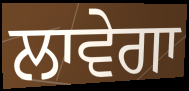
ਲਾਵੇਗਾ